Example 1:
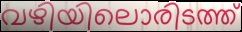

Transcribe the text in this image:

വഴിയിലൊരിടത്ത്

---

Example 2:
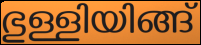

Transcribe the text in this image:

ഭുള്ളിയിങ്ങ്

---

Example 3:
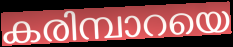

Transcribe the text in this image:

കരിമ്പാറയെ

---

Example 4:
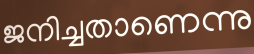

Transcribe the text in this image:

ജനിച്ചതാണെന്നു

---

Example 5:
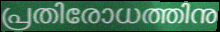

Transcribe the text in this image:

പ്രതിരോധത്തിനു